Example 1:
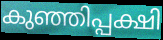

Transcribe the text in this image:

കുഞ്ഞിപ്പക്ഷി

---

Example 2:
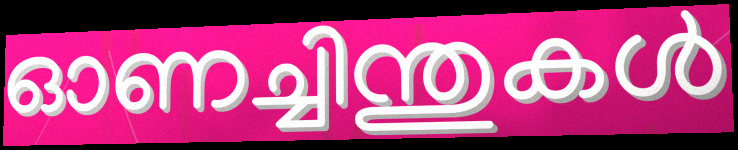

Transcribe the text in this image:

ഓണച്ചിന്തുകൾ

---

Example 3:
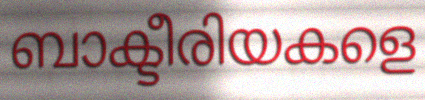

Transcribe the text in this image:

ബാക്ടീരിയകളെ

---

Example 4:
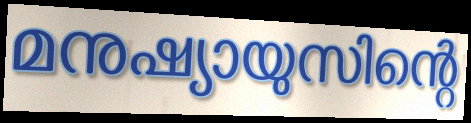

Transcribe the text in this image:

മനുഷ്യായുസിന്റെ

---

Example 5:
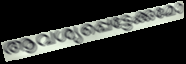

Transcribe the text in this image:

ആവശ്യപ്പെട്ടേക്കുമോ